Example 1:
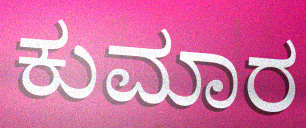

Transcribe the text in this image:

ಕುಮಾರ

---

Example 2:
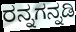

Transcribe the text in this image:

ರನ್ನಗನ್ನಡಿ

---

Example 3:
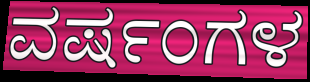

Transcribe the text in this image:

ವರ್ಷಂಗಳ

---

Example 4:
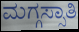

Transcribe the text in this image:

ಮಗ್ಗಸ್ಸಾತಿ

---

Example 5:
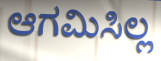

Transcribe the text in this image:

ಆಗಮಿಸಿಲ್ಲ